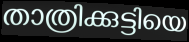
താത്രിക്കുട്ടിയെ